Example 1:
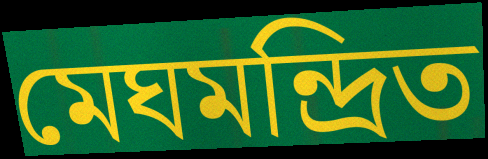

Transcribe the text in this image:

মেঘমন্দ্রিত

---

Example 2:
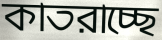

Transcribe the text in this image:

কাতরাচ্ছে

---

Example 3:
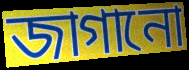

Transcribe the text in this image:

জাগানো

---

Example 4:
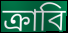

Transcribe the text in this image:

ক্রাবি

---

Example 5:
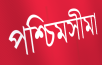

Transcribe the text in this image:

পশ্চিমসীমা